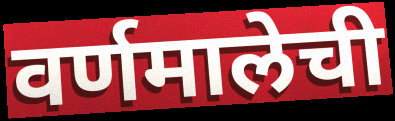
वर्णमालेची